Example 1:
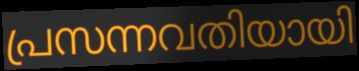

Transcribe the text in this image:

പ്രസന്നവതിയായി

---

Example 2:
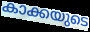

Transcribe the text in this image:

കാക്കയുടെ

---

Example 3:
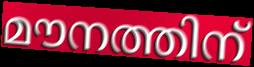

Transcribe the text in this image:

മൗനത്തിന്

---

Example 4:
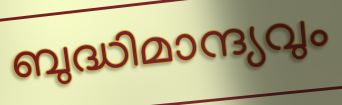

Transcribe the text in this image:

ബുദ്ധിമാന്ദ്യവും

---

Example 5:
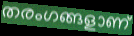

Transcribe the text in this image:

തരംഗങ്ങളാണ്